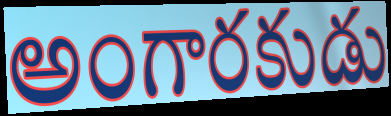
అంగారకుడు